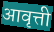
आवृत्ती